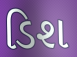
ડિશ